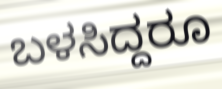
ಬಳಸಿದ್ದರೂ